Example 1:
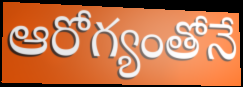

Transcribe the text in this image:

ఆరోగ్యంతోనే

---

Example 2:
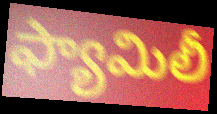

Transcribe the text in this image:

ఫ్యామిలీ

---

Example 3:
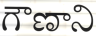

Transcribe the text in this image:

గౌణాని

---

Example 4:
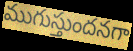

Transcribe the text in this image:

ముగుస్తుందనగా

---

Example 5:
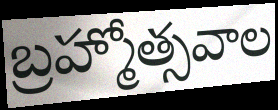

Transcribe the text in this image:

బ్రహ్మోత్సవాల